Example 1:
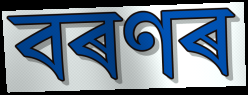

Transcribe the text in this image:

বৰণৰ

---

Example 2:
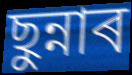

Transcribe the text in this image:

ছুন্নাৰ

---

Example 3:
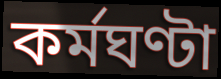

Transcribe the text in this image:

কৰ্মঘণ্টা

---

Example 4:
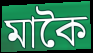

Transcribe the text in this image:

মাকৈ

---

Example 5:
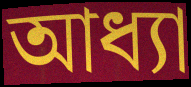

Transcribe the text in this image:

আধ্যা